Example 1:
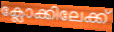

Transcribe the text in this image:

ക്ലോക്കിലേക്ക്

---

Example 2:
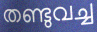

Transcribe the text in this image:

തണ്ടുവച്ച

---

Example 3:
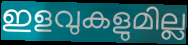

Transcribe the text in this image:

ഇളവുകളുമില്ല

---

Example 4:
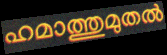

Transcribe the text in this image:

ഹമാത്തുമുതൽ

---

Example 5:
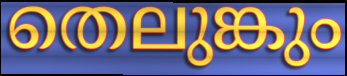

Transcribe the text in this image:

തെലുങ്കും